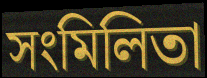
সংমিলিতা